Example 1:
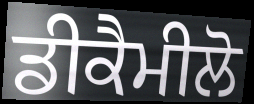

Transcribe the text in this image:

ਡੀਕੈਮੀਲੋ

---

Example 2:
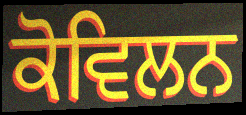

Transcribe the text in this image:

ਕੋਵਿਲਨ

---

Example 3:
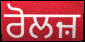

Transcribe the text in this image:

ਰੋਲਜ਼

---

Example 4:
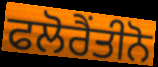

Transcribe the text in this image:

ਫਲੋਰੈਂਤੀਨੋ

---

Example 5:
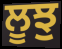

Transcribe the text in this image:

ਲੂਝੁ